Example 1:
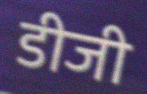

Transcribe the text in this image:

डीजी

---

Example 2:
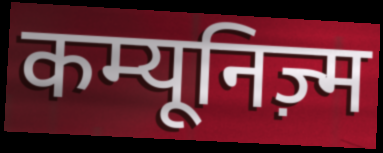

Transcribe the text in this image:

कम्यूनिज़्म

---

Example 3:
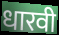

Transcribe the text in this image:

धारवी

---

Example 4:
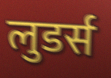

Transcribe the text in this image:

लुडर्स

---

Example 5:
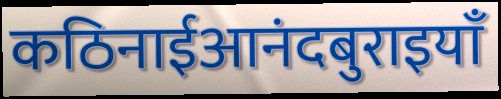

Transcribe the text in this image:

कठिनाईआनंदबुराइयाँ